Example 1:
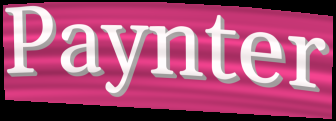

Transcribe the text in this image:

Paynter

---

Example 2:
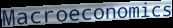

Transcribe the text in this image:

Macroeconomics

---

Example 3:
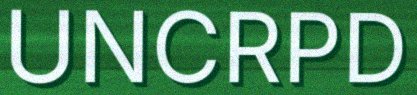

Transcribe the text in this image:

UNCRPD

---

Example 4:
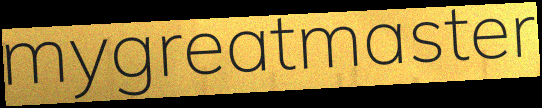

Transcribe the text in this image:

mygreatmaster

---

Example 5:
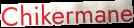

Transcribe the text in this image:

Chikermane